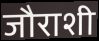
जौराशी